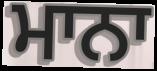
ਮਾਨਾ